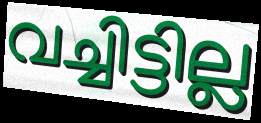
വച്ചിട്ടില്ല